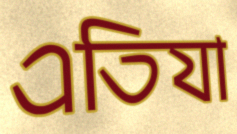
এতিযা